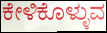
ಕೇಳಿಕೊಳ್ಳುವ